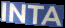
INTA